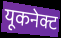
यूकनेक्ट